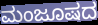
ಮಂಜೂಷದ